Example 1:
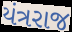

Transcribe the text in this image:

યંત્રરાજ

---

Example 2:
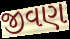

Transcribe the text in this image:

જીવણ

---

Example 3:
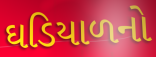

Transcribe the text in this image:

ઘડિયાળનો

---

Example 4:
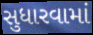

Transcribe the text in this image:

સુધારવામાં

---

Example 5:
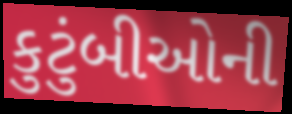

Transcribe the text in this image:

કુટુંબીઓની